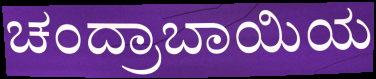
ಚಂದ್ರಾಬಾಯಿಯ